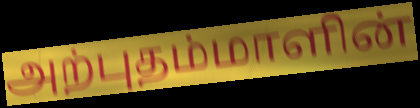
அற்புதம்மாளின்